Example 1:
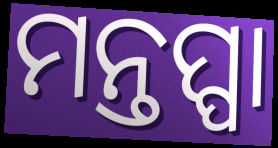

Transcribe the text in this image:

ମନ୍ତପ୍ପା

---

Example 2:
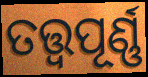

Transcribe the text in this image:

ତତ୍ତ୍ୱପୂର୍ଣ୍ଣ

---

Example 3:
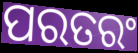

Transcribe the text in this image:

ପରତରଂ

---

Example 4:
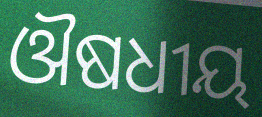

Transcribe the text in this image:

ଔଷଧୀୟ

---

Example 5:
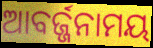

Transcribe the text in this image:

ଆବର୍ଜ୍ଜନାମୟ